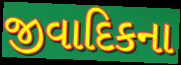
જીવાદિકના